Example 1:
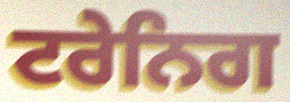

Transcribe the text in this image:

ਟਰੇਨਿਗ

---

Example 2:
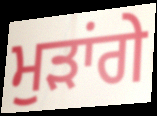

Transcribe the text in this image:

ਮੁੜਾਂਗੇ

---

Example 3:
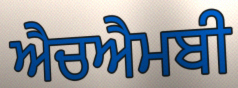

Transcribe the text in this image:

ਐਚਐਮਬੀ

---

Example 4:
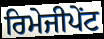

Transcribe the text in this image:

ਰਿਮੇਜੀਪੇਂਟ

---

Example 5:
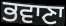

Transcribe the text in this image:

ਭਵਾਣਾ